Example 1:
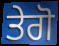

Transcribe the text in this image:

ਤੇਗੋ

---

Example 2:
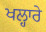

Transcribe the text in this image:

ਖਲ੍ਹਾਰੇ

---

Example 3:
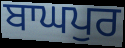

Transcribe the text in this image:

ਬਾਘਪੁਰ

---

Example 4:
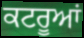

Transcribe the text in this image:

ਕਟਰੂਆਂ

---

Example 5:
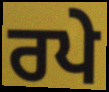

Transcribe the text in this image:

ਰਪੇ